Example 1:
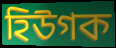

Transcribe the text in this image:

হিউগক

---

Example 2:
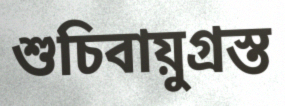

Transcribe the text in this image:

শুচিবায়ুগ্ৰস্ত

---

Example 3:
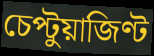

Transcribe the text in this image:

চেপ্টুয়াজিণ্ট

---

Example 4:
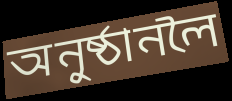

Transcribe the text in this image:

অনুষ্ঠানলৈ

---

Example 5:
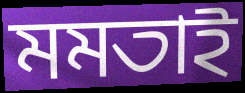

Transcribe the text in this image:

মমতাই